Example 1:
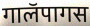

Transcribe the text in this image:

गालॅपागस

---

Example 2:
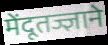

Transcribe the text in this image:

मेंदूतज्ज्ञाने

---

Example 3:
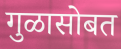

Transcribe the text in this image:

गुळासोबत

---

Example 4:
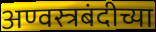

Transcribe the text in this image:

अण्वस्त्रबंदीच्या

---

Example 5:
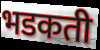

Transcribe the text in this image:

भडकती